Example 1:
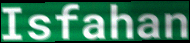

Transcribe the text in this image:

Isfahan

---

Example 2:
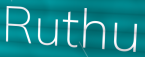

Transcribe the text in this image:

Ruthu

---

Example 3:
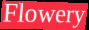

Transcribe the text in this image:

Flowery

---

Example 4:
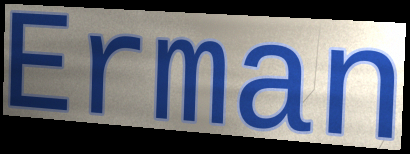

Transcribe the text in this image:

Erman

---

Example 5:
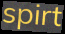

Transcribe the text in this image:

spirt